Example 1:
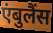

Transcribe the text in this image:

एंबुलैंस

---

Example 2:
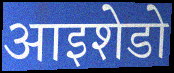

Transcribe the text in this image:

आइशेडो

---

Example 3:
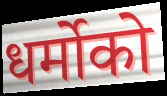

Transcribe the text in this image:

धर्मोको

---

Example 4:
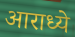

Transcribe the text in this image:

आराध्ये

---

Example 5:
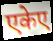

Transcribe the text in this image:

एकेए